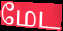
மேட